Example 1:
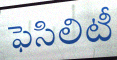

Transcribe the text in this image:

ఫెసిలిటీ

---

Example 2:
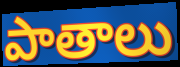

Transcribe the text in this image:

పాతాలు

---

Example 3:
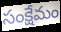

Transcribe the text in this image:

సంక్షేమం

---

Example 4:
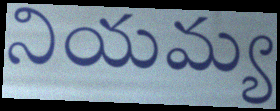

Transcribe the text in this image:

నియమ్య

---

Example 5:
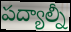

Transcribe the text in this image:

పద్యాల్నీ